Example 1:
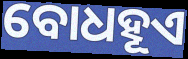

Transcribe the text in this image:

ବୋଧହୂଏ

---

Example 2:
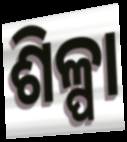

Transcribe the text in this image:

ଶିଳ୍ପା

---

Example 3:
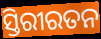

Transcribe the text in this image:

ସ୍ତିରୀରତନ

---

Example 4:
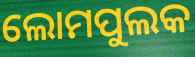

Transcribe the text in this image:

ଲୋମପୁଲକ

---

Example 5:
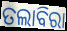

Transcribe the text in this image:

ତଲାବିରା